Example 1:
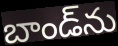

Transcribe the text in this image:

బాండ్‌ను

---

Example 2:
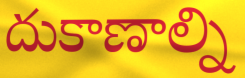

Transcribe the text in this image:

దుకాణాల్ని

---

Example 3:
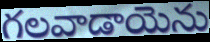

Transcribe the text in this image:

గలవాడాయెను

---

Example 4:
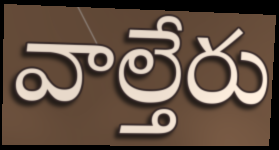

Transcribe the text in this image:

వాల్తేరు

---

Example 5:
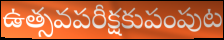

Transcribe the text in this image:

ఉత్సవపరీక్షకుపంపుట